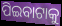
ପିଇବାଟାକୁ